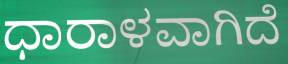
ಧಾರಾಳವಾಗಿದೆ